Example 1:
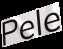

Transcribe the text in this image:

Pele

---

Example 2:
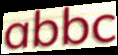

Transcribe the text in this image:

abbc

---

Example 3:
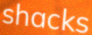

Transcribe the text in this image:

shacks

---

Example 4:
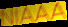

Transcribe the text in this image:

NIAAA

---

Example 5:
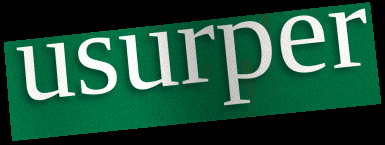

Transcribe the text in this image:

usurper